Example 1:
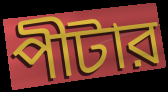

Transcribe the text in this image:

পীটার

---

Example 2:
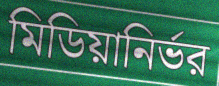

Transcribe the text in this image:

মিডিয়ানির্ভর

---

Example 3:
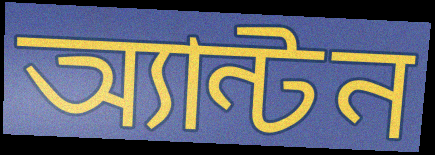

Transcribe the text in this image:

অ্যান্টন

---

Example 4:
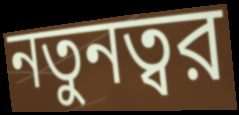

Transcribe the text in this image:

নতুনত্বর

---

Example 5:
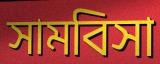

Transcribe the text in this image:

সামবিসা